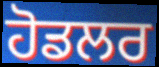
ਹੋਡਲਰ